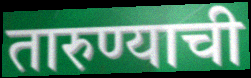
तारुण्याची